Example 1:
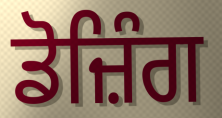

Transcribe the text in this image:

ਡੋਜ਼ਿੰਗ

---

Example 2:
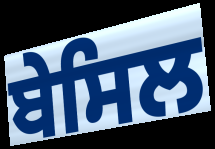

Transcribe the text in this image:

ਬੇਸਿਲ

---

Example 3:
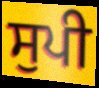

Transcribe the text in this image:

ਸੁਪੀ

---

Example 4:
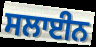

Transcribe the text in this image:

ਸਲਾਈਨ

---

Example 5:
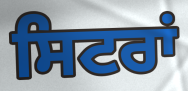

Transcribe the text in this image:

ਸਿਟਰਾਂ